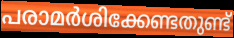
പരാമർശിക്കേണ്ടതുണ്ട്